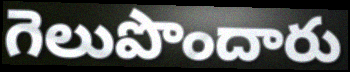
గెలుపొందారు